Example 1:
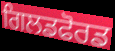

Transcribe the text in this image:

ਗਿਲਡਫੋਰਡ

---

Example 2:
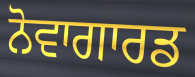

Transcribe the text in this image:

ਨੋਵਾਗਾਰਡ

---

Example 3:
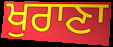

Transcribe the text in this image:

ਖੁਰਾਣਾ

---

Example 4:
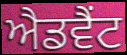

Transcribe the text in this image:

ਐਡਵੈਂਟ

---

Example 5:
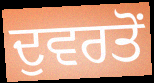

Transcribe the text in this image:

ਦੁਵਰਤੋਂ